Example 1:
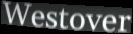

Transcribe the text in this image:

Westover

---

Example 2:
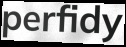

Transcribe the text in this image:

perfidy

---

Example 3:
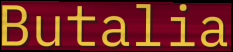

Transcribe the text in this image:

Butalia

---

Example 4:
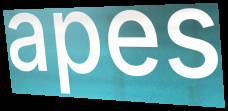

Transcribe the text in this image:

apes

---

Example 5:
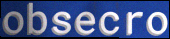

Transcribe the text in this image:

obsecro